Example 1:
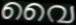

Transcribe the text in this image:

വൈ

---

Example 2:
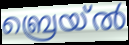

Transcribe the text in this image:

ബ്രെയ്ൽ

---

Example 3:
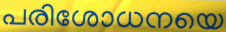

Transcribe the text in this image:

പരിശോധനയെ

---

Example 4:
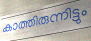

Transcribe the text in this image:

കാത്തിരുന്നിട്ടും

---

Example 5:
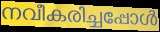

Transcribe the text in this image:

നവീകരിച്ചപ്പോൾ